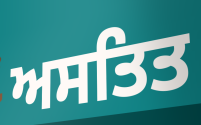
ਅਸਤਿਤ